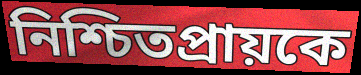
নিশ্চিতপ্রায়কে